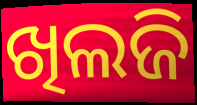
ଖିଲଜି